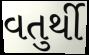
વતુર્થી